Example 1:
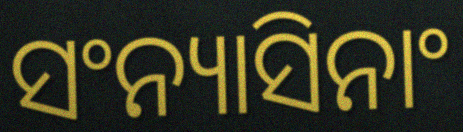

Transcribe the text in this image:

ସଂନ୍ୟାସିନାଂ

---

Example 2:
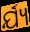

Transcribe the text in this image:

ର୍ଯ୍ୟ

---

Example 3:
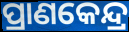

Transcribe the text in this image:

ପ୍ରାଣକେନ୍ଦ୍ର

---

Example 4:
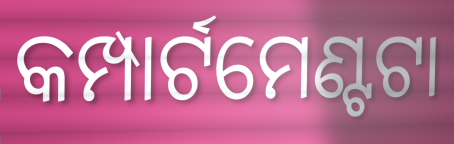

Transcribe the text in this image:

କମ୍ପାର୍ଟମେଣ୍ଟଟା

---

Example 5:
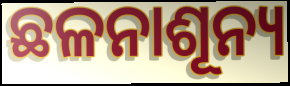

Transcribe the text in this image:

ଛଳନାଶୂନ୍ୟ